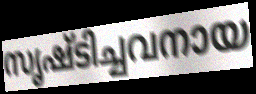
സൃഷ്ടിച്ചവനായ